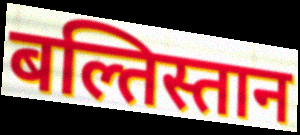
बल्तिस्तान